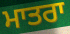
ਮਾਤਰਾ